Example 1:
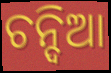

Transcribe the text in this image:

ଚନ୍ଦିଆ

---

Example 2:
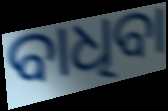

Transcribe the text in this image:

ବାଧିବା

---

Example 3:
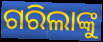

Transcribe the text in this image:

ଗରିଲାଙ୍କୁ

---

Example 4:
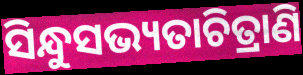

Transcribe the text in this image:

ସିନ୍ଧୁସଭ୍ୟତାଚିତ୍ରାଣି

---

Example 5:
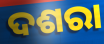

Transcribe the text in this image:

ଦଶରା